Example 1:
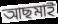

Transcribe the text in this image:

আছমাই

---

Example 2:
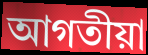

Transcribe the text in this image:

আগতীয়া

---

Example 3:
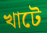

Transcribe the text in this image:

খাটে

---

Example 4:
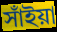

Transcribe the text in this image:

সাঁইয়া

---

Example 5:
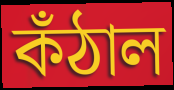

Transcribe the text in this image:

কঁঠাল